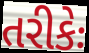
તરીકેઃ